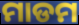
ମାଡମ